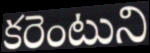
కరెంటుని